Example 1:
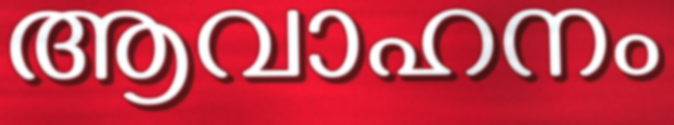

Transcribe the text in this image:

ആവാഹനം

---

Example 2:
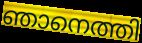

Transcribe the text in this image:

ഞാനെത്തി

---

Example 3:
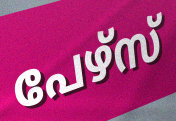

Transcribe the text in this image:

പേഴ്സ്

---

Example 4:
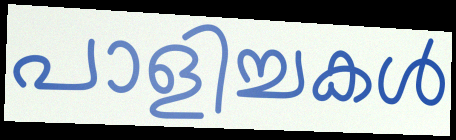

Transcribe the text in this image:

പാളിച്ചകൾ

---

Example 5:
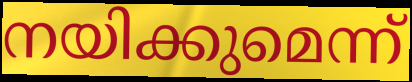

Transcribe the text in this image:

നയിക്കുമെന്ന്